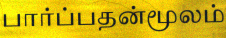
பார்ப்பதன்மூலம்